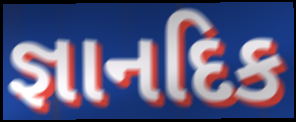
જ્ઞાનદિક